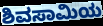
ಶಿವಸಾಮಿಯ